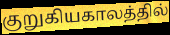
குறுகியகாலத்தில்